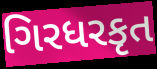
ગિરધરકૃત